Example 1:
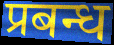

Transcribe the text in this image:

प्रबन्ध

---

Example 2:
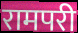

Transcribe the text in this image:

रामपरी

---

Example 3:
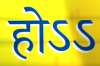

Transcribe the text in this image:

होऽऽ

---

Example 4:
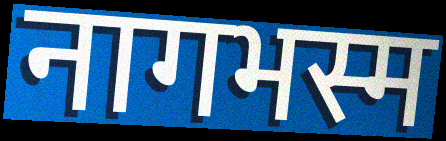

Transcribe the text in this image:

नागभस्म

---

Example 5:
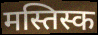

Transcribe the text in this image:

मस्तिस्क